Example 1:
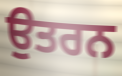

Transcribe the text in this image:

ਉਤਰਨ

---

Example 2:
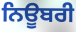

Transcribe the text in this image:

ਨਿਊਬਰੀ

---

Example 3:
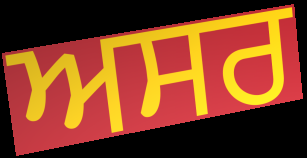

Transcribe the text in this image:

ਅਸਰ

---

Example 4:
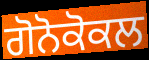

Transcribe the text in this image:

ਗੋਨੋਕੋਕਲ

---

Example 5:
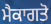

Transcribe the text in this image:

ਮੈਕਾਗਤੋ